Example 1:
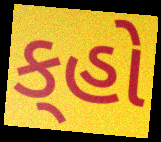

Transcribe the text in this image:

ક્‌હો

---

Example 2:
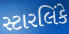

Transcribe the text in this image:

સ્ટારલિંકે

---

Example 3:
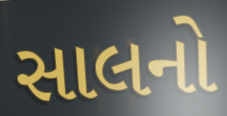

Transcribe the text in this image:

સાલનો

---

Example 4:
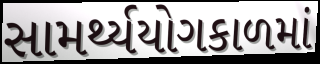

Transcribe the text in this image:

સામર્થ્યયોગકાળમાં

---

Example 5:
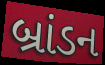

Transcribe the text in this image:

બ્રાંડન